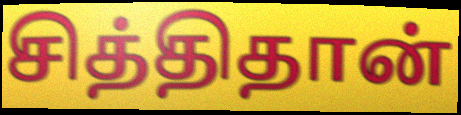
சித்திதான்